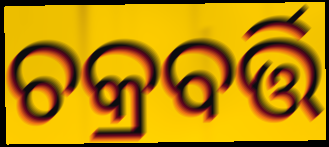
ଚକ୍ରବର୍ତ୍ତି